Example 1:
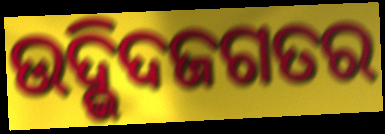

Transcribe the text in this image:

ଉଦ୍ଭିଦଜଗତର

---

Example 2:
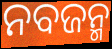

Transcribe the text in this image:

ନବଜନ୍ମ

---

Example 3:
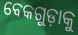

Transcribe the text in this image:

ବେକଗୁଡ଼ାକୁ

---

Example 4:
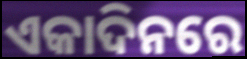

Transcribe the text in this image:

ଏକାଦିନରେ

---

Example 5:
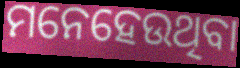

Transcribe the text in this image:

ମନେହେଉଥିବା